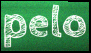
pelo